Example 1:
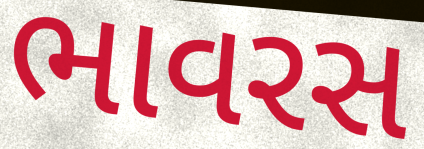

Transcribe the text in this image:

ભાવરસ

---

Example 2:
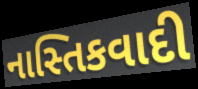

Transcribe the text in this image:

નાસ્તિકવાદી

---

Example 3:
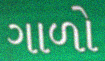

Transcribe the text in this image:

ગાળો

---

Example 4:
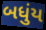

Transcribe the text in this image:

બધુંય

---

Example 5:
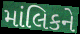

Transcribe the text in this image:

માંલિકને